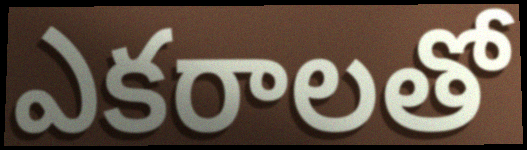
ఎకరాలతో